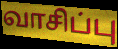
வாசிப்பு